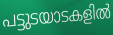
പട്ടുടയാടകളിൽ